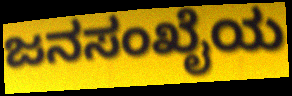
ಜನಸಂಖೈಯ